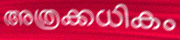
അത്രക്കധികം